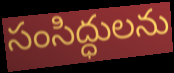
సంసిద్ధులను